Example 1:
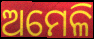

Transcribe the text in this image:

ଅମେଳି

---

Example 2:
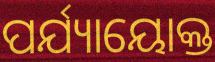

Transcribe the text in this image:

ପର୍ଯ୍ୟାୟୋକ୍ତ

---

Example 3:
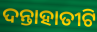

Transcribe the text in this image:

ଦନ୍ତାହାତୀଟି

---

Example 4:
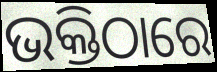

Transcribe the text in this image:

ଭକ୍ତିଠାରେ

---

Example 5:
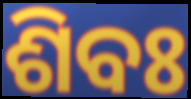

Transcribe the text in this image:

ଶିବଃ